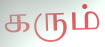
கரும்